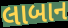
લાબાન